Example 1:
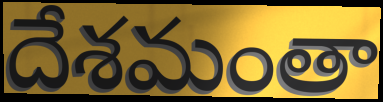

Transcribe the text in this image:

దేశమంతా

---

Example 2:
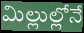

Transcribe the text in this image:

మిల్లుల్లోనే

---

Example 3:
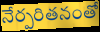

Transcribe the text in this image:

నేర్పరితనంతో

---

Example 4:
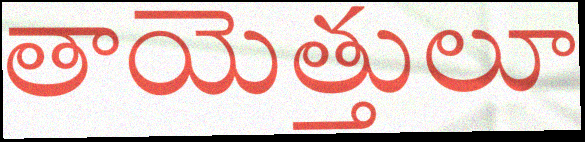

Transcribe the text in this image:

తాయెత్తులూ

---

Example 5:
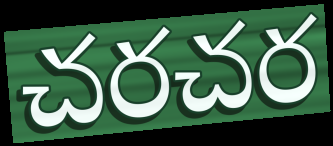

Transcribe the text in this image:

చరచర